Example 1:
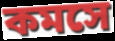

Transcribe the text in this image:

কমসে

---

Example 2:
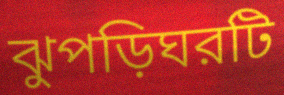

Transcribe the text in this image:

ঝুপড়িঘরটি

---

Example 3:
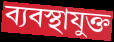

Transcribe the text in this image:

ব্যবস্থাযুক্ত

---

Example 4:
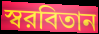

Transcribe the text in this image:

স্বরবিতান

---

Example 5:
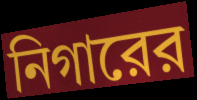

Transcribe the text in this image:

নিগারের